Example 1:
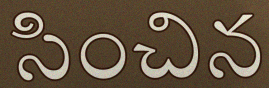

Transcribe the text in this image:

సించిన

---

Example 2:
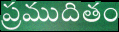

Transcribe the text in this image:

ప్రముదితం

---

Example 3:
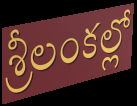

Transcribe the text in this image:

శ్రీలంకల్లో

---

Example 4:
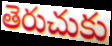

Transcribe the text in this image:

తెరుచుకు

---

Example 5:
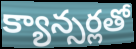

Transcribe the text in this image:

క్యాన్సర్లతో